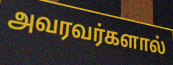
அவரவர்களால்